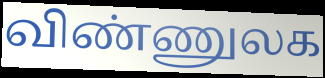
விண்ணுலக